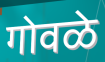
गोवळे